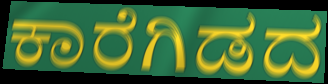
ಕಾರೆಗಿಡದ